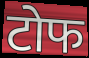
टोफ